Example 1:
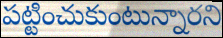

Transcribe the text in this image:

పట్టించుకుంటున్నారని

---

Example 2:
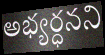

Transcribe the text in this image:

అభ్యర్ధనని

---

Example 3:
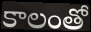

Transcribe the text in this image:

కాలంతో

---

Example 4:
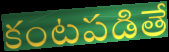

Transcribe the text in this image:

కంటపడితే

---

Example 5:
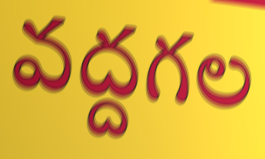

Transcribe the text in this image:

వద్దగల